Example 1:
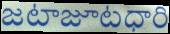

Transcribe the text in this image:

జటాజూటధారి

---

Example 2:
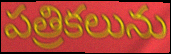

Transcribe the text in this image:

పత్రికలును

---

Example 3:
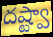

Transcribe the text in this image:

దష్ట్వా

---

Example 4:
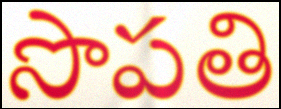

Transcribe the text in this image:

సొపతి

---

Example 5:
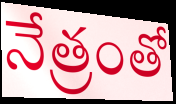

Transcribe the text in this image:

నేత్రంతో